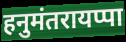
हनुमंतरायप्पा